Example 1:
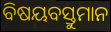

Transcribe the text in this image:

ବିଷୟବସ୍ତୁମାନ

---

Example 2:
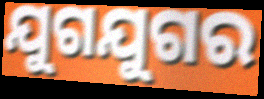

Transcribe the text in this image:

ଯୁଗଯୁଗର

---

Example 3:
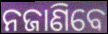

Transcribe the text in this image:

ନଜାଣିବେ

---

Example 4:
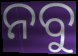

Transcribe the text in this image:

ନବୁ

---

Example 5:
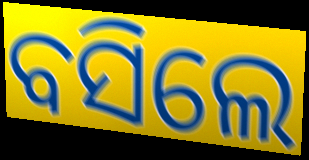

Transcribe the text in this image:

ବସିଲେ